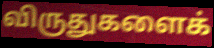
விருதுகளைக்